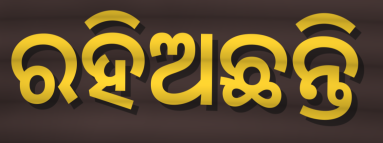
ରହିଅଛନ୍ତି